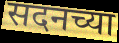
सदनच्या